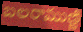
బలరాముణ్ణి